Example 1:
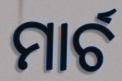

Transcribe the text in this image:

ମାର୍ଚ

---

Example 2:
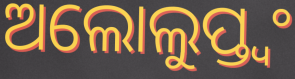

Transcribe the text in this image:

ଅଲୋଲୁପ୍ତ୍ୱଂ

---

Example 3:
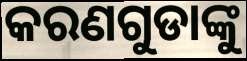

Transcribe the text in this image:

କରଣଗୁଡାଙ୍କୁ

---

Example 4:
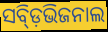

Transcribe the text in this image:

ସବ୍ଡ଼ିଭିଜନାଲ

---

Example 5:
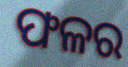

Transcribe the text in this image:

ଫଳର